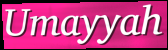
Umayyah